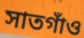
সাতগাঁও